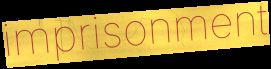
imprisonment